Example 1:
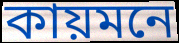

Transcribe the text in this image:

কায়মনে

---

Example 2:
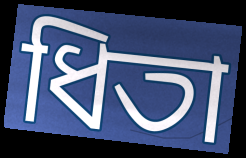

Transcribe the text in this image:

ধিতা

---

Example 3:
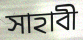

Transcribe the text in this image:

সাহাবী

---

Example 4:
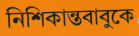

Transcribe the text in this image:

নিশিকান্তবাবুকে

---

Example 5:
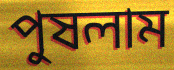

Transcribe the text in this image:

পুষলাম